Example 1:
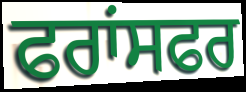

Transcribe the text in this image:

ਫਰਾਂਸਫਰ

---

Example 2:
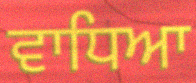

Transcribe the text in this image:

ਵਾਧਿਆ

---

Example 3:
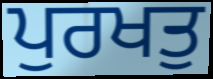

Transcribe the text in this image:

ਪੁਰਖਤੁ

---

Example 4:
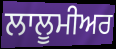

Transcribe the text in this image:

ਲਾਲੂਮੀਅਰ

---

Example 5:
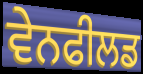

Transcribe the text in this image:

ਵੇਨਫੀਲਡ